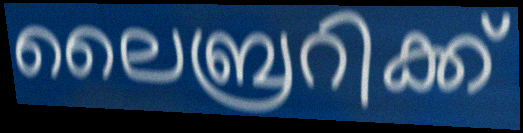
ലൈബ്രറിക്ക്